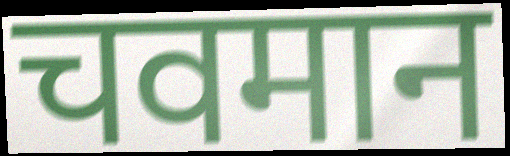
चवमान